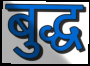
बुद्ध